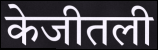
केजीतली